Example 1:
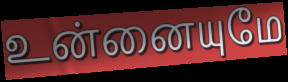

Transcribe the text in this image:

உன்னையுமே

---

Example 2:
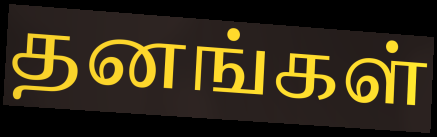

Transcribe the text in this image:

தனங்கள்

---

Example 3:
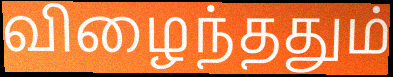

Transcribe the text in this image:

விழைந்ததும்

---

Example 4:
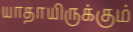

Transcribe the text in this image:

யாதாயிருக்கும்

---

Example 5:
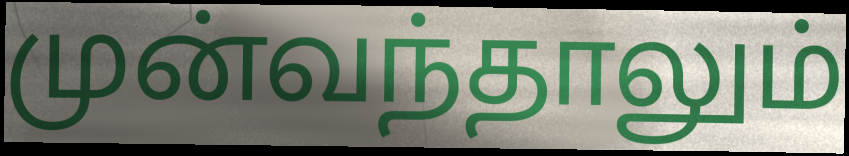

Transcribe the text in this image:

முன்வந்தாலும்